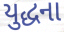
યુદ્ધના